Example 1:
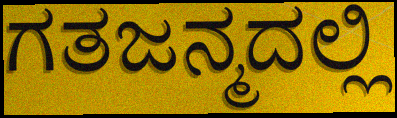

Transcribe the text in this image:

ಗತಜನ್ಮದಲ್ಲಿ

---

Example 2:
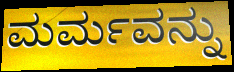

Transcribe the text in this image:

ಮರ್ಮವನ್ನು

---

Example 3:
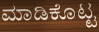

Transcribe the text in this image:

ಮಾಡಿಕೊಟ್ಟ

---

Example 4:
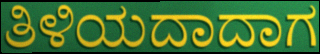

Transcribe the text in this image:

ತಿಳಿಯದಾದಾಗ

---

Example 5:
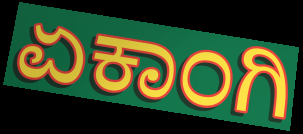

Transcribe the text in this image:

ಏಕಾಂಗಿ